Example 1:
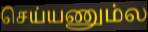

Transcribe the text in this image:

செய்யணும்ல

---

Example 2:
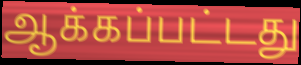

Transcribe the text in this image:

ஆக்கப்பட்டது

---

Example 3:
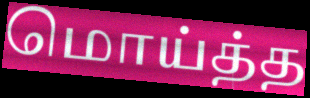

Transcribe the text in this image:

மொய்த்த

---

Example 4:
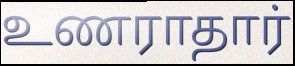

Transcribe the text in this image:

உணராதார்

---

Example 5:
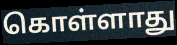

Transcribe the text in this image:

கொள்ளாது